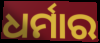
ଧର୍ମାର